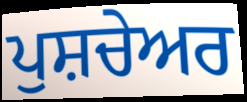
ਪੁਸ਼ਚੇਅਰ